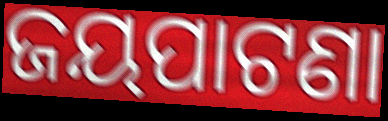
ଜୟପାଟଣା